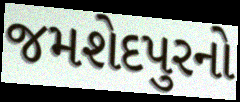
જમશેદપુરનો